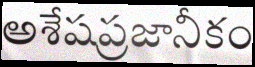
అశేషప్రజానీకం